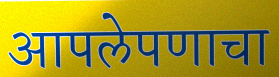
आपलेपणाचा